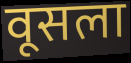
वूसला